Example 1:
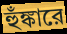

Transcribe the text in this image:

হুঁঙ্কারে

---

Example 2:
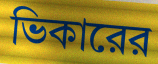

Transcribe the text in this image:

ভিকারের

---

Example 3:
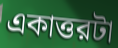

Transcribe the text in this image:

একাত্তরটা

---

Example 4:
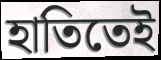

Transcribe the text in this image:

হাতিতেই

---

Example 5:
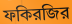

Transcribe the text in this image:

ফকিরজির